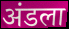
अंडला